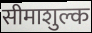
सीमाशुल्क